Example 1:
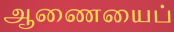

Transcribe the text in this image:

ஆணையைப்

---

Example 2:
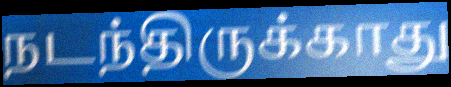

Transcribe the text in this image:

நடந்திருக்காது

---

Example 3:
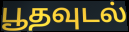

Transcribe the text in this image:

பூதவுடல்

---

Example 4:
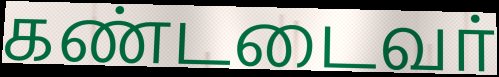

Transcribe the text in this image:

கண்டடைவர்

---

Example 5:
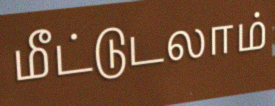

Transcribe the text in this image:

மீட்டுடலாம்